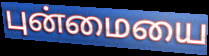
புன்மையை